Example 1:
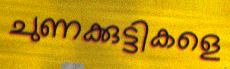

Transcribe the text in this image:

ചുണക്കുട്ടികളെ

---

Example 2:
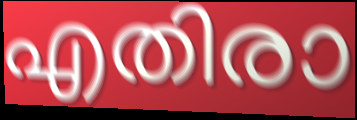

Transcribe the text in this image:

എതിരാ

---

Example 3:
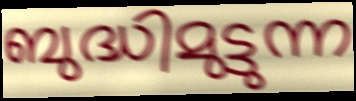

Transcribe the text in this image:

ബുദ്ധിമുട്ടുന്ന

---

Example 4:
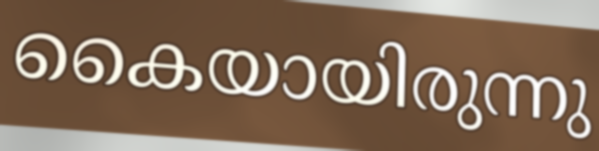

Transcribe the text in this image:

കൈയായിരുന്നു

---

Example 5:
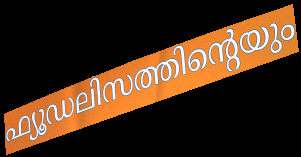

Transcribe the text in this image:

ഫ്യൂഡലിസത്തിന്റെയും